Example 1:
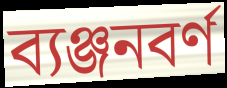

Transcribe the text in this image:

ব্যঞ্জনবর্ণ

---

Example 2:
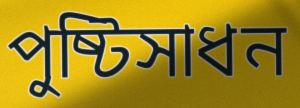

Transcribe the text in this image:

পুষ্টিসাধন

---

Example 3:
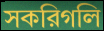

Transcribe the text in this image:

সকরিগলি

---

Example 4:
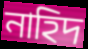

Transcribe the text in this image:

নাহিদ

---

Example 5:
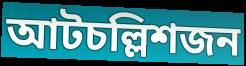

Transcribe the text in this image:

আটচল্লিশজন